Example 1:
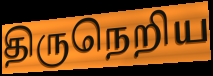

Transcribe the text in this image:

திருநெறிய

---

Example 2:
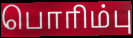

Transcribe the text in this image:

பொரிம்பு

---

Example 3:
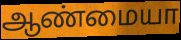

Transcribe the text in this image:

ஆண்மையா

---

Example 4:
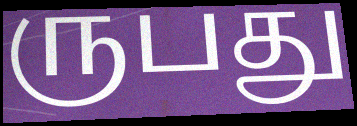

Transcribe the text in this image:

ருபது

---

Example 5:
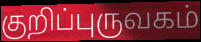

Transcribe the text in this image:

குறிப்புருவகம்